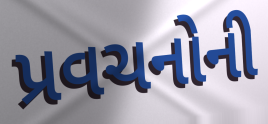
પ્રવચનોની